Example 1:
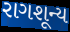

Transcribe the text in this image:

રાગશૂન્ય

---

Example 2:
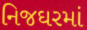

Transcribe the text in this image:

નિજઘરમાં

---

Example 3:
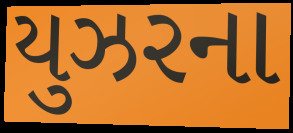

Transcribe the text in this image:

યુઝરના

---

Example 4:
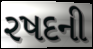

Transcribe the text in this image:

રષદની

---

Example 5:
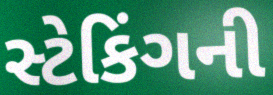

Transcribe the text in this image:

સ્ટેકિંગની